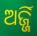
ଅର୍ଜ୍ଜି